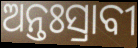
ଅନ୍ତଃସ୍ରାବୀ